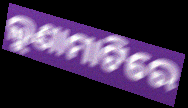
ଲୁଣାମାଟିରେ